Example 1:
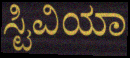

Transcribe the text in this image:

ಸ್ಟಿವಿಯಾ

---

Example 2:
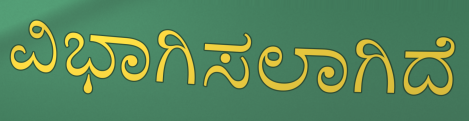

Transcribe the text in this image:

ವಿಭಾಗಿಸಲಾಗಿದೆ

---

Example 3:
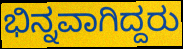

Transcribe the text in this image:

ಭಿನ್ನವಾಗಿದ್ದರು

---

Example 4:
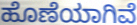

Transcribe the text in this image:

ಹೊಣೆಯಾಗಿವೆ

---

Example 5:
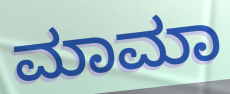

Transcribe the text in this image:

ಮಾಮಾ